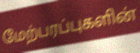
மேற்பரப்புகளின்